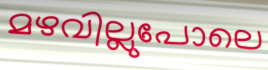
മഴവില്ലുപോലെ